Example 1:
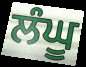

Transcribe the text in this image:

ਲੰਘੂ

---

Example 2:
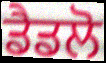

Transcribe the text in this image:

ਡੈਡਲੋ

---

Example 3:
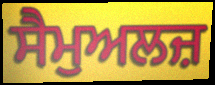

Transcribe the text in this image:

ਸੈਮੁਅਲਜ਼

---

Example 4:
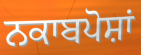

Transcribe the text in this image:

ਨਕਾਬਪੋਸ਼ਾਂ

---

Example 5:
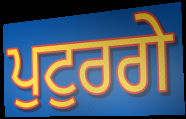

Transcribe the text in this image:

ਪੁਟੁਰਗੇ